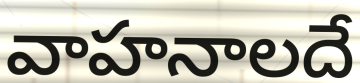
వాహనాలదే